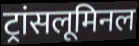
ट्रांसलूमिनल